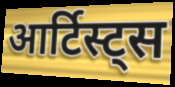
आर्टिस्ट्स